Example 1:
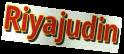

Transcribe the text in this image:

Riyajudin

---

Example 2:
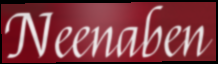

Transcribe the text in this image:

Neenaben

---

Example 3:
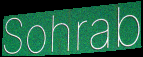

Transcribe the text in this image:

Sohrab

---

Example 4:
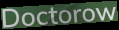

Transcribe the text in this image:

Doctorow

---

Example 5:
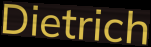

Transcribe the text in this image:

Dietrich